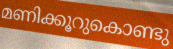
മണിക്കൂറുകൊണ്ടു